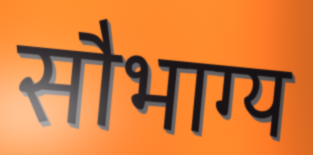
सौभाग्य